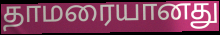
தாமரையானது